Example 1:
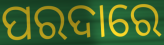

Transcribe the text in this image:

ପରଦାରେ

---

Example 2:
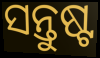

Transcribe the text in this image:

ସନ୍ତୁଷ୍ଟ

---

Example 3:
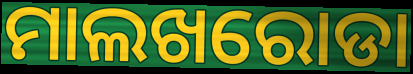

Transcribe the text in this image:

ମାଲଖରୋଡା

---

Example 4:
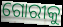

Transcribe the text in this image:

ଗୋରୀକୁ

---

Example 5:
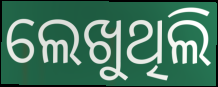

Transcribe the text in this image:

ଲେଖୁଥିଲି